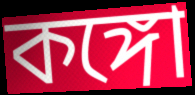
কঙ্গো